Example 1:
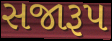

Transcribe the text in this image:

સજારૂપ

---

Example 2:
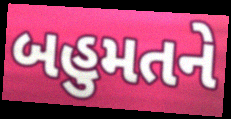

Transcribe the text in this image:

બહુમતને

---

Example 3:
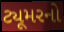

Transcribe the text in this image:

ટ્યૂમરનો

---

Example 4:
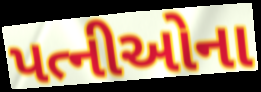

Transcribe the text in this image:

પત્નીઓના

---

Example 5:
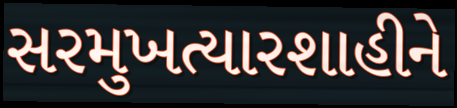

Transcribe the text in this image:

સરમુખત્યારશાહીને